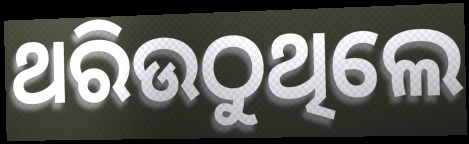
ଥରିଉଠୁଥିଲେ